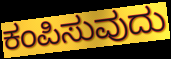
ಕಂಪಿಸುವುದು